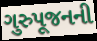
ગુરુપૂજનની